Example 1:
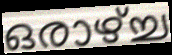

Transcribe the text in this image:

ഒരാഴ്ച്ച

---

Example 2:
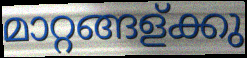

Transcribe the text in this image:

മാറ്റങ്ങള്ക്കു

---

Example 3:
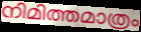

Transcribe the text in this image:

നിമിത്തമാത്രം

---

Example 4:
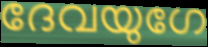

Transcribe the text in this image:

ദേവയുഗേ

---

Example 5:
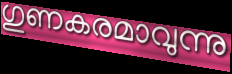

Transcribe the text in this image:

ഗുണകരമാവുന്നു